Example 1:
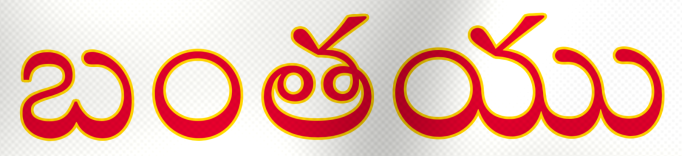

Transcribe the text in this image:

బంతయు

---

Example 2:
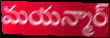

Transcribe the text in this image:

మయన్మార్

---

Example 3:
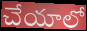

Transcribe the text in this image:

చేయాలో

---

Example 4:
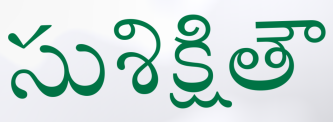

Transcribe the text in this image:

సుశిక్షితౌ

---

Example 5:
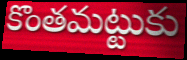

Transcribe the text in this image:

కొంతమట్టుకు